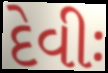
દેવીઃ